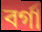
বর্গা